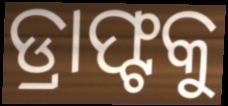
ଡ୍ରାଫ୍ଟକୁ